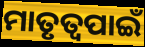
ମାତୃତ୍ୱପାଇଁ